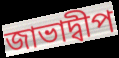
জাভাদ্বীপ